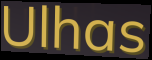
Ulhas